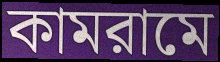
কামরামে